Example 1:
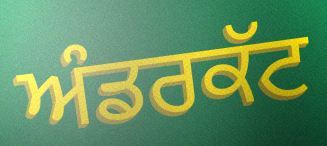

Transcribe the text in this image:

ਅੰਡਰਕੱਟ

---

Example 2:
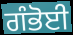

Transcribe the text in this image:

ਗੰਭੋਈ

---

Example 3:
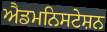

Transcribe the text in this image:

ਐਡਮਨਿਸਟੇਸ਼ਨ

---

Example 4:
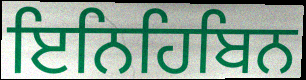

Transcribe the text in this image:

ਇਨਿਹਿਬਿਨ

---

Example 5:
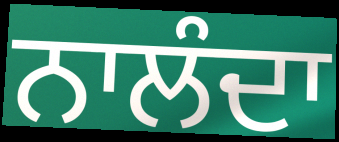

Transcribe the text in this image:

ਨਾਲੰਦਾ